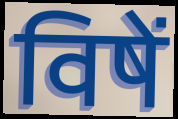
विषें